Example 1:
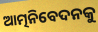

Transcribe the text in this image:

ଆତ୍ମନିବେଦନକୁ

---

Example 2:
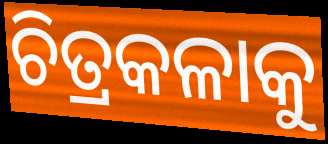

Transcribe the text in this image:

ଚିତ୍ରକଳାକୁ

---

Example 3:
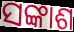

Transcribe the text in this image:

ସଙ୍କାଶ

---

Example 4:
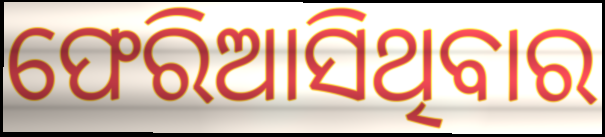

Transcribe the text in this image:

ଫେରିଆସିଥିବାର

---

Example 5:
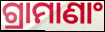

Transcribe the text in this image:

ଗ୍ରାମାଣାଂ